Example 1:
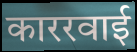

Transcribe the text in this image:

काररवाई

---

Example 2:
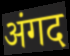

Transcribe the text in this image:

अंगद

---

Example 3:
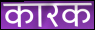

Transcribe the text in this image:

कारक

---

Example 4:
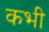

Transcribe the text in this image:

कभी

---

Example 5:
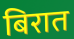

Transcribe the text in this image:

बिरात